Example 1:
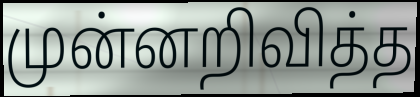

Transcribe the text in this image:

முன்னறிவித்த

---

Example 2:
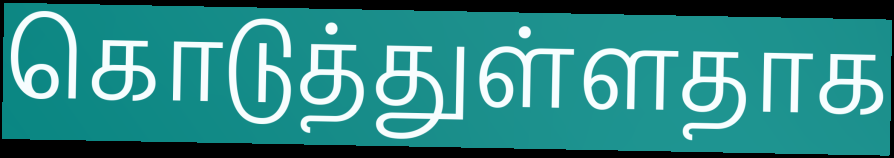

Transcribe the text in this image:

கொடுத்துள்ளதாக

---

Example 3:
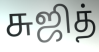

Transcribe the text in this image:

சுஜித்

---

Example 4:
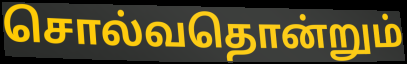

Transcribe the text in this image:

சொல்வதொன்றும்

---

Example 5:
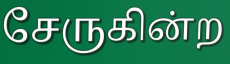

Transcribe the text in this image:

சேருகின்ற